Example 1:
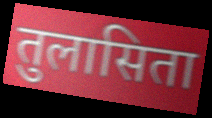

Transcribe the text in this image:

तुलासिता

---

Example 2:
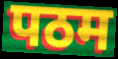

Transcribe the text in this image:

पठम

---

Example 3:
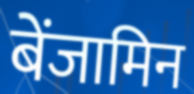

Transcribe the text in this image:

बेंजामिन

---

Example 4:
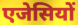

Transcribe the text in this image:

एजेसियों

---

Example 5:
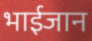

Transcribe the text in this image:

भाईजान